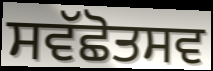
ਸਵੱਛੋਤਸਵ